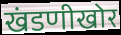
खंडणीखोर